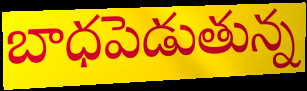
బాధపెడుతున్న